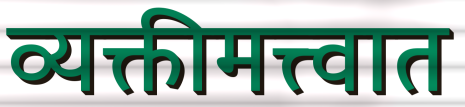
व्यक्तीमत्त्वात